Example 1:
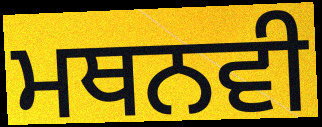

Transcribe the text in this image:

ਮਥਨਵੀ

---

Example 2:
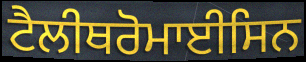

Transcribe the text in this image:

ਟੈਲੀਥਰੋਮਾਈਸਿਨ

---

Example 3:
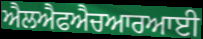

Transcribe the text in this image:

ਐਲਐਫਐਚਆਰਆਈ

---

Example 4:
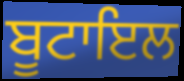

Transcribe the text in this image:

ਬੂਟਾਇਲ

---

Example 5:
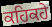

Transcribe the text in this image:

ਕਹਿਕਹੇ